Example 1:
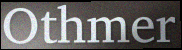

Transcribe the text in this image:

Othmer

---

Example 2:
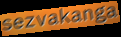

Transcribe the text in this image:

sezvakanga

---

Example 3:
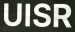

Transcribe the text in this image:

UISR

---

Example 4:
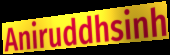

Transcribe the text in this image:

Aniruddhsinh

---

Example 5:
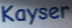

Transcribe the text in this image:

Kayser